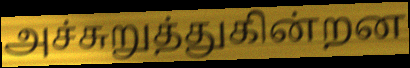
அச்சுறுத்துகின்றன